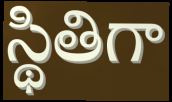
స్థితిగా